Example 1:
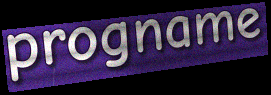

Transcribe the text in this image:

progname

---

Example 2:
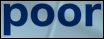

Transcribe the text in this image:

poor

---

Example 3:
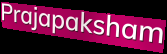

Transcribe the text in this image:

Prajapaksham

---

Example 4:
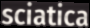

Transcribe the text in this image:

sciatica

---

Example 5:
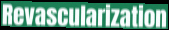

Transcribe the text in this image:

Revascularization